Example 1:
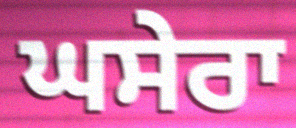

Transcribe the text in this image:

ਘਸੇਰਾ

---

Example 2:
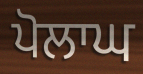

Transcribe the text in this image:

ਪੋਲਾਘ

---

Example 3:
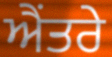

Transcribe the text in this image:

ਐਂਤਰੇ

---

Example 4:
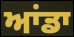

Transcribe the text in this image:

ਆਂਡਾ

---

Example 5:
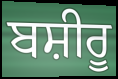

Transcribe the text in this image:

ਬਸ਼ੀਰੂ